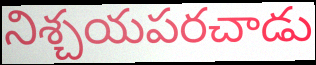
నిశ్చయపరచాడు